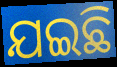
ଯଇଛି